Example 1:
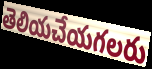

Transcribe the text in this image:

తెలియచేయగలరు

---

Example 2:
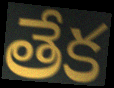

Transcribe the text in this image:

తేక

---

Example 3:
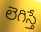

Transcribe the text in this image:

లెగిస్తే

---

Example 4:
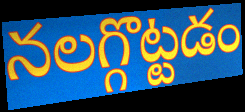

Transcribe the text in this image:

నలగ్గొట్టడం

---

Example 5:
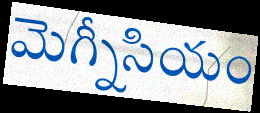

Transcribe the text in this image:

మెగ్నీసియం